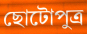
ছোটোপুত্র